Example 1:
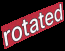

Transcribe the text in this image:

rotated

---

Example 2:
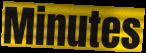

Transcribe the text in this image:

Minutes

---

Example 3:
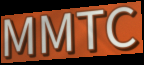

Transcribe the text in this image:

MMTC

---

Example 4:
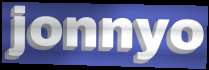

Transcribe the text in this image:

jonnyo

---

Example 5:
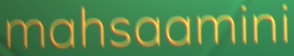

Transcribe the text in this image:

mahsaamini